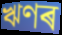
ঋণৰ